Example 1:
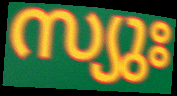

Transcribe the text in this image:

സ്യുഃ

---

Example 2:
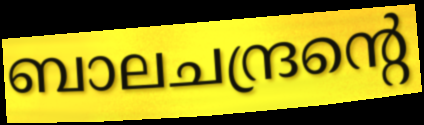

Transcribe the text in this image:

ബാലചന്ദ്രന്റെ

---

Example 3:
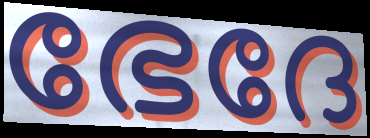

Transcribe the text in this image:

ഭേദേ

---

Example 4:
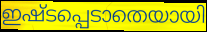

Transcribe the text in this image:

ഇഷ്ടപ്പെടാതെയായി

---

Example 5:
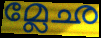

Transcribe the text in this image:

മ്ലേഛ